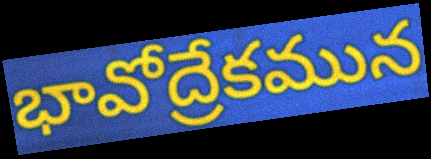
భావోద్రేకమున